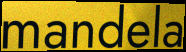
mandela